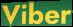
Viber